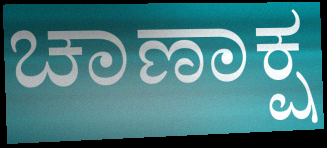
ಚಾಣಾಕ್ಷ